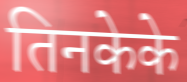
तिनकेके